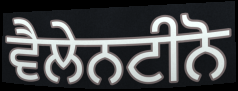
ਵੈਲੇਨਟੀਨੋ